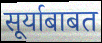
सूर्याबाबत